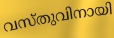
വസ്തുവിനായി